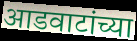
आडवाटांच्या